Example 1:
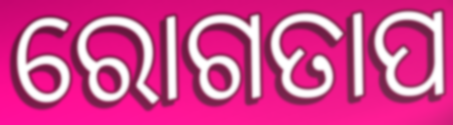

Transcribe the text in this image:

ରୋଗତାପ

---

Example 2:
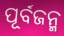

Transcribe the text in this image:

ପୂର୍ବଜନ୍ମ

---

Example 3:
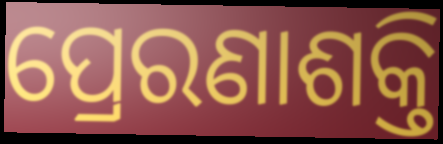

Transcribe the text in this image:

ପ୍ରେରଣାଶକ୍ତି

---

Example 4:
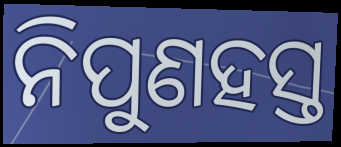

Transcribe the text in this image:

ନିପୁଣହସ୍ତ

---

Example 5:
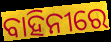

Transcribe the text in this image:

ବାହିନୀରେ